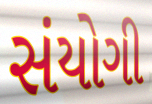
સંયોગી